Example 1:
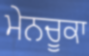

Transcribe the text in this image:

ਮੇਨਚੂਕਾ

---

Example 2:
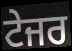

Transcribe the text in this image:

ਟੇਜਰ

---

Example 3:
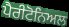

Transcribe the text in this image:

ਪੈਰੀਟੋਨਿਅਲ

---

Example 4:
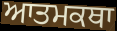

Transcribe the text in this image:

ਆਤਮਕਥਾ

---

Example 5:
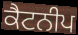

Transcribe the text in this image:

ਕੈਟਨੀਪ